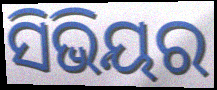
ସିଭିୟର